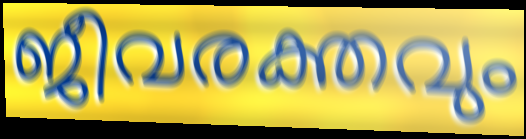
ജീവരക്തവും